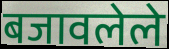
बजावलेले